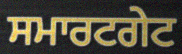
ਸਮਾਰਟਗੇਟ